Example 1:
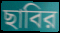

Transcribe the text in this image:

ছাবির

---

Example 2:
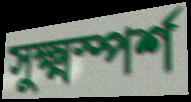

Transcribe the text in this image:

সুক্ষ্মস্পর্শ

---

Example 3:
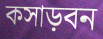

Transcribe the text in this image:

কসাড়বন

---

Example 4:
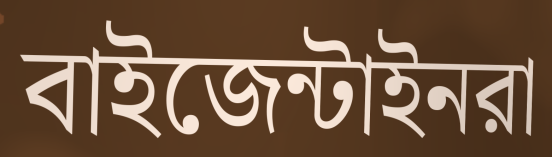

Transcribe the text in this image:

বাইজেন্টাইনরা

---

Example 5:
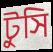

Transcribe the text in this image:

টুসি